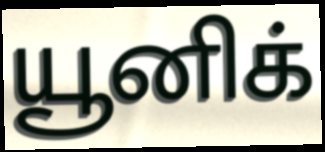
யூனிக்